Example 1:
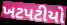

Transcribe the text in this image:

ખટપટીયો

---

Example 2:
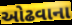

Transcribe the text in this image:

ઓઢવાના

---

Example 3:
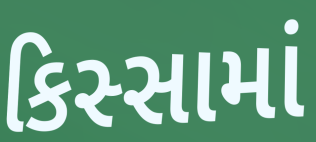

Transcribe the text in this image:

કિસ્સામાં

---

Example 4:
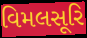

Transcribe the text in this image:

વિમલસૂરિ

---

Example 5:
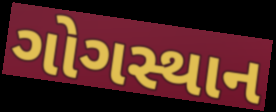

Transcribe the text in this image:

ગોગસ્થાન